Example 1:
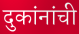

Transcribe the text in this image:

दुकांनांची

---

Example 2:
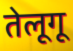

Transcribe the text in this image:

तेलूगू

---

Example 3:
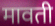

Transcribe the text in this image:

मावती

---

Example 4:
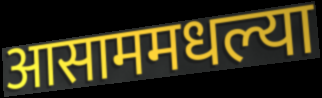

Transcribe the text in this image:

आसाममधल्या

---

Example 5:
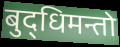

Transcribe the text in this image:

बुद्धिमन्तो